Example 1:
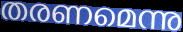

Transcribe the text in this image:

തരണമെന്നു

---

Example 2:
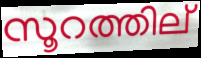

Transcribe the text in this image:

സൂറത്തില്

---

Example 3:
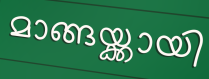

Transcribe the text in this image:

മാങ്ങയ്ക്കായി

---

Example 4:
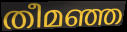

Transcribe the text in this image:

തീമഞ്ഞ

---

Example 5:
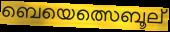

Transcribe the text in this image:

ബെയെത്സെബൂല്